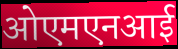
ओएमएनआई